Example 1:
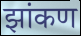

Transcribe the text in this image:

झांकण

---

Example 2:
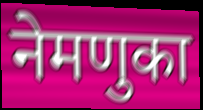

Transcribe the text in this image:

नेमणुका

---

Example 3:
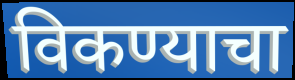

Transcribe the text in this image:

विकण्याचा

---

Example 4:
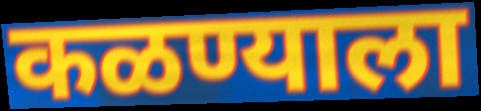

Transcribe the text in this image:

कळण्याला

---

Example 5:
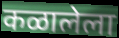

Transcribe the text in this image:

कळालेला